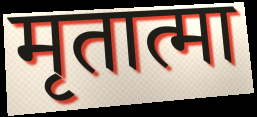
मृतात्मा